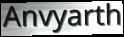
Anvyarth